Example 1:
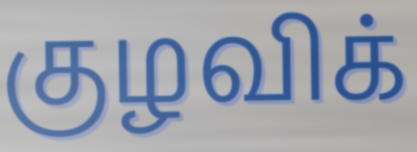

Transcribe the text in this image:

குழவிக்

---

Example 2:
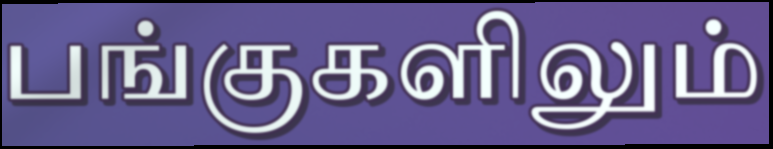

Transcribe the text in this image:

பங்குகளிலும்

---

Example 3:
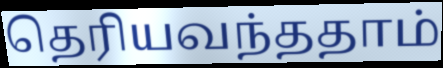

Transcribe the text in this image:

தெரியவந்ததாம்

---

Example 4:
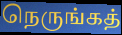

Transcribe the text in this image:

நெருங்கத்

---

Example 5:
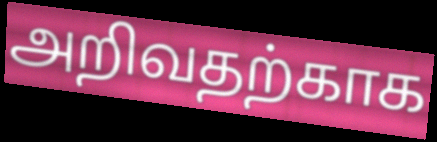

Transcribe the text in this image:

அறிவதற்காக